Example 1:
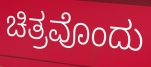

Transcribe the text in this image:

ಚಿತ್ರವೊಂದು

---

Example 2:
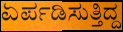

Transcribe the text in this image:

ಏರ್ಪಡಿಸುತ್ತಿದ್ದ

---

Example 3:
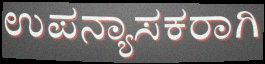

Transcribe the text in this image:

ಉಪನ್ಯಾಸಕರಾಗಿ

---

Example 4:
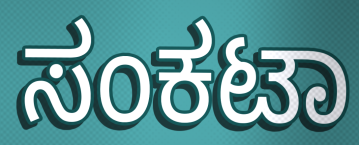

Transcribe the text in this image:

ಸಂಕಟಾ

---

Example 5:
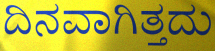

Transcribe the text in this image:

ದಿನವಾಗಿತ್ತದು